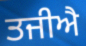
ਤਜੀਐ